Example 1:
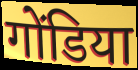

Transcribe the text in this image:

गोंडिया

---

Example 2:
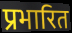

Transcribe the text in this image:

प्रभारित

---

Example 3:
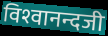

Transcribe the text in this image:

विश्वानन्दजी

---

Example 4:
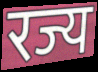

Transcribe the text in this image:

रज्य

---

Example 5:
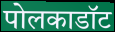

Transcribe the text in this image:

पोलकाडॉट